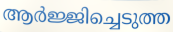
ആർജ്ജിച്ചെടുത്ത